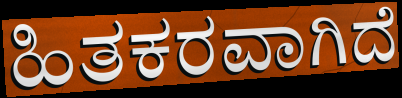
ಹಿತಕರವಾಗಿದೆ